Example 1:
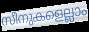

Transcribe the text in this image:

സീനുകളെല്ലാം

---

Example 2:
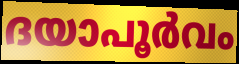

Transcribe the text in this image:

ദയാപൂർവം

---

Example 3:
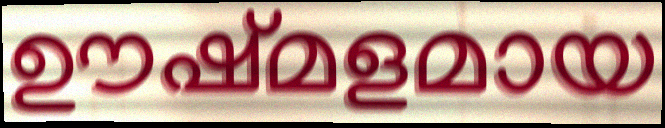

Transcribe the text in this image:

ഊഷ്‌മളമായ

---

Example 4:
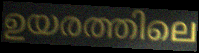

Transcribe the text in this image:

ഉയരത്തിലെ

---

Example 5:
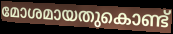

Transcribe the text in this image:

മോശമായതുകൊണ്ട്